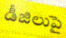
డీజిలుపై